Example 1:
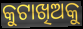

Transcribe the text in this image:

କୁଟାଖିଅକୁ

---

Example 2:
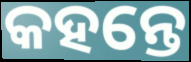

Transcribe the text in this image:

କହନ୍ତେ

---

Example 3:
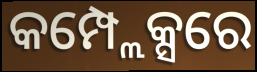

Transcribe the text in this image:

କମ୍ପ୍ଲେକ୍ସରେ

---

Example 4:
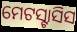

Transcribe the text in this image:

ମେଟସ୍ଟାସିସ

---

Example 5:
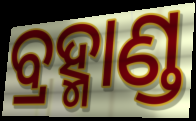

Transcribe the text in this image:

ବ୍ରହ୍ମାଣ୍ଡ